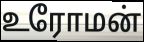
உரோமன்